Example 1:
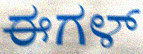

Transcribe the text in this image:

ಈಗಳ್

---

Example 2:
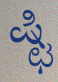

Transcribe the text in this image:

ಷ್ಟಿ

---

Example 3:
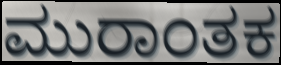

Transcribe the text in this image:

ಮುರಾಂತಕ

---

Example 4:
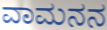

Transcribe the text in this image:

ವಾಮನನ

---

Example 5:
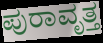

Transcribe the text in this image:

ಪುರಾವೃತ್ತ